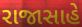
રાજાસાહે